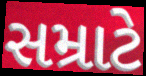
સમ્રાટે